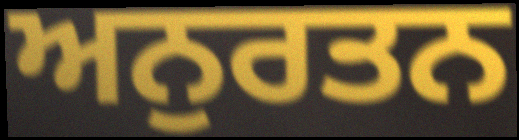
ਅਨੁਰਤਨ